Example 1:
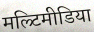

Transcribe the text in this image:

मल्टिमीडिया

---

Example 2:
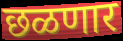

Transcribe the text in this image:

छळणार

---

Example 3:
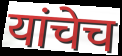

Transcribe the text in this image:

यांचेच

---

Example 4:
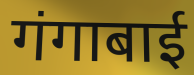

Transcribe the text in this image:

गंगाबाई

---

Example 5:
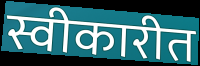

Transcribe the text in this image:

स्वीकारीत